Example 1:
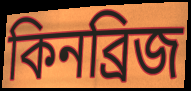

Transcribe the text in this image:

কিনব্রিজ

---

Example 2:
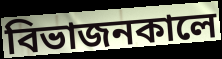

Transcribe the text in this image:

বিভাজনকালে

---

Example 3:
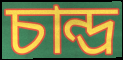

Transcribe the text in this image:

চান্দ্র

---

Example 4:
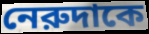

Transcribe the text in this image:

নেরুদাকে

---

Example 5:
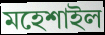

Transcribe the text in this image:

মহেশাইল